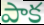
పాక